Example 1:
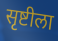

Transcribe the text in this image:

सृष्टीला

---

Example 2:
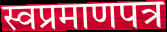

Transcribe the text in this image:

स्वप्रमाणपत्र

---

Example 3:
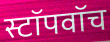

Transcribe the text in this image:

स्टॉपवॉच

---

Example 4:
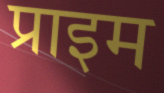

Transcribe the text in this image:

प्राइम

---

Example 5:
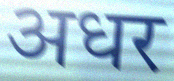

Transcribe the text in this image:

अधर